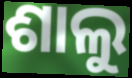
ଶାଲୁ